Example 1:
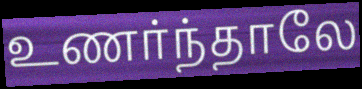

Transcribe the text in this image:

உணர்ந்தாலே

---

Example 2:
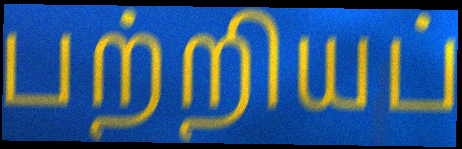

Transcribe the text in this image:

பற்றியப்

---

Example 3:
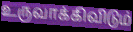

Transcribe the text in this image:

உருவாக்கிவிடும்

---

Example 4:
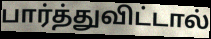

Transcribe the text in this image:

பார்த்துவிட்டால்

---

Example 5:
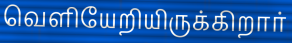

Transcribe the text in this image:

வெளியேறியிருக்கிறார்